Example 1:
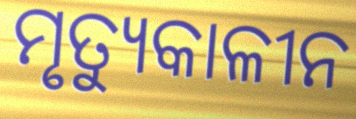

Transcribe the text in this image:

ମୃତ୍ୟୁକାଳୀନ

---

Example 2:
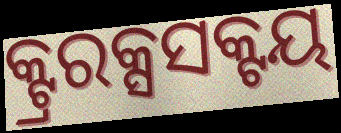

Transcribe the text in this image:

କ୍ଟ୍ରରକ୍ସସକ୍ଟୟ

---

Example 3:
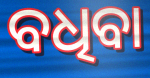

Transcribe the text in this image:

ବଧିବା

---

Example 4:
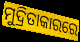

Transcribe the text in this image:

ମୁଦ୍ରିତାକାରରେ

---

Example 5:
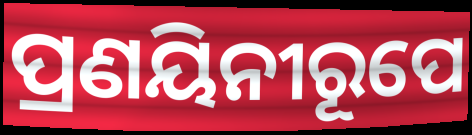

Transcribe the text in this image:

ପ୍ରଣୟିନୀରୂପେ